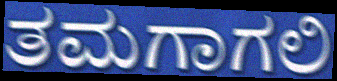
ತಮಗಾಗಲಿ